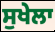
ਸੁਖੇਲਾ